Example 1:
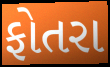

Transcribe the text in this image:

ફોતરા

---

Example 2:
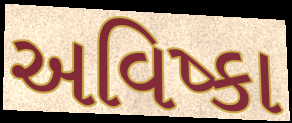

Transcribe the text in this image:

અવિષ્કા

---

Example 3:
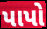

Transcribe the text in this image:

પાપો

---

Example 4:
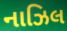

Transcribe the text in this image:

નાઝિલ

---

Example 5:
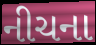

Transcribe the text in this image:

નીચના